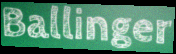
Ballinger